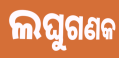
ଲଘୁଗଣକ